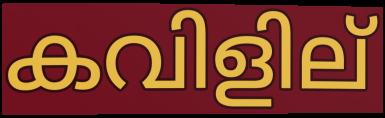
കവിളില്